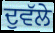
ਦੁਵੱਲੇ